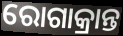
ରୋଗାକ୍ରାନ୍ତ